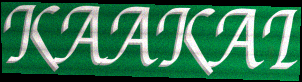
KAAKAI